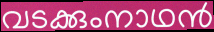
വടക്കുംനാഥൻ